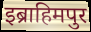
इब्राहिमपुर